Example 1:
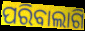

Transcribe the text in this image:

ପରିବାଲାଗି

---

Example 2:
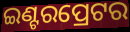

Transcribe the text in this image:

ଇଣ୍ଟରପ୍ରେଟର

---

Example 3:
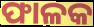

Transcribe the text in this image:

ଫାଳକ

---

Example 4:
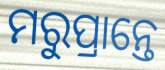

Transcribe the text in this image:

ମରୁପ୍ରାନ୍ତେ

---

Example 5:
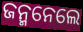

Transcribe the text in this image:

ଜନ୍ମନେଲେ